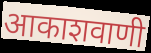
आकाशवाणी